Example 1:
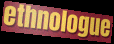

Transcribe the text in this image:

ethnologue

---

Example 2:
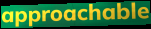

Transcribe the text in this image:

approachable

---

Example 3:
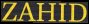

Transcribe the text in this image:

ZAHID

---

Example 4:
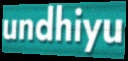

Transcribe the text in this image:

undhiyu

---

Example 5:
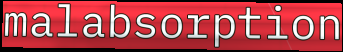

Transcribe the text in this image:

malabsorption